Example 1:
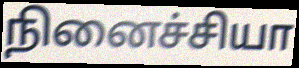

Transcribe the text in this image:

நினைச்சியா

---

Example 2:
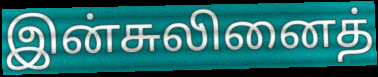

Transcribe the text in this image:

இன்சுலினைத்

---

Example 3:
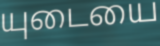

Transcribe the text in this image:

யுடையை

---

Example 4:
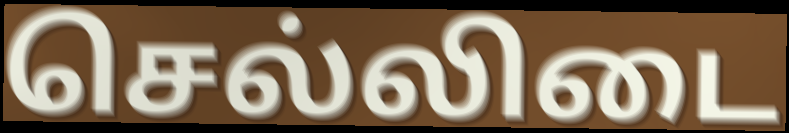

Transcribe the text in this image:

செல்லிடை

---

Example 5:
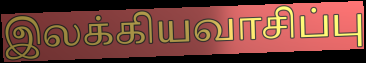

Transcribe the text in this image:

இலக்கியவாசிப்பு